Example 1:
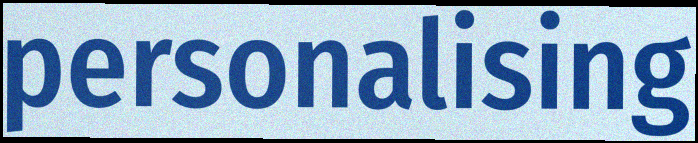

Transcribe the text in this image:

personalising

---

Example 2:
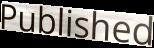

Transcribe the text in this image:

Published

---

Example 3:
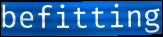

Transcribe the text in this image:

befitting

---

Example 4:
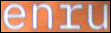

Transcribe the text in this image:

enru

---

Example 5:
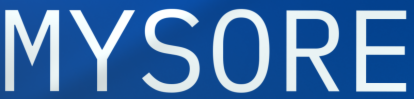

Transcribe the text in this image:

MYSORE